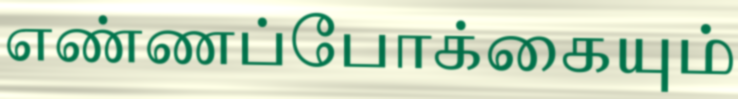
எண்ணப்போக்கையும்